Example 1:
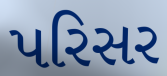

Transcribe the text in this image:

પરિસર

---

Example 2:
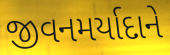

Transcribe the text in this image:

જીવનમર્યાદાને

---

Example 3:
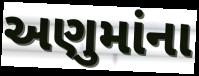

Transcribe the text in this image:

અણુમાંના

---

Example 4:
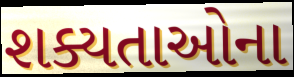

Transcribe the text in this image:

શક્યતાઓના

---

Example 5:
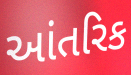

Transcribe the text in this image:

આંતરિક